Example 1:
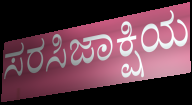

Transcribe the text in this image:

ಸರಸಿಜಾಕ್ಷಿಯ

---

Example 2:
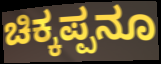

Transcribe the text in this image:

ಚಿಕ್ಕಪ್ಪನೂ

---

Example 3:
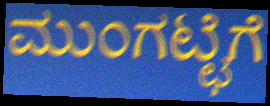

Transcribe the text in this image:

ಮುಂಗಟ್ಟೆಗೆ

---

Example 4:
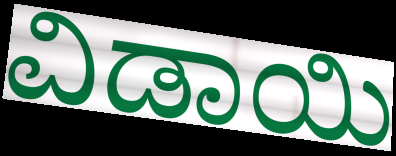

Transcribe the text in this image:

ವಿಡಾಯಿ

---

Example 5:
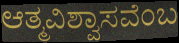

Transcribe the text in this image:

ಆತ್ಮವಿಶ್ವಾಸವೆಂಬ